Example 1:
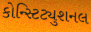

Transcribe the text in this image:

કોન્સ્ટિટ્યુશનલ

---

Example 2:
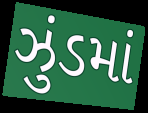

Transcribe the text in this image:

ઝુંડમાં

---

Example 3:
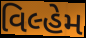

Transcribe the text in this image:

વિલ્હેમ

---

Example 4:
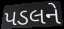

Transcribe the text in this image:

પડલને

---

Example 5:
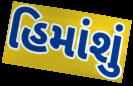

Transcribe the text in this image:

હિમાંશું